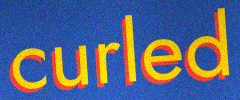
curled